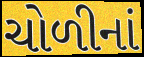
ચોળીનાં